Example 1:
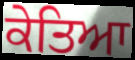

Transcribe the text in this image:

ਕੇਤਿਆ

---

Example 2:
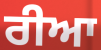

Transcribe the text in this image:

ਰੀਆ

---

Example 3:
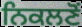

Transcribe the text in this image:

ਨਿਕਲਣੋਂ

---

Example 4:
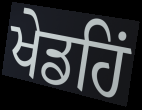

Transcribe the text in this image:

ਖੇਡਹਿਂ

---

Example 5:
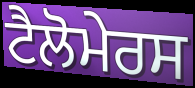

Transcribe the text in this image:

ਟੈਲੋਮੇਰਸ